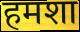
हमशा